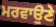
ਮਰਵਾਉਣੇ